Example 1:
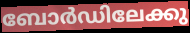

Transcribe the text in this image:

ബോർഡിലേക്കു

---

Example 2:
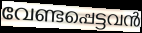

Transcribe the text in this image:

വേണ്ടപ്പെട്ടവൻ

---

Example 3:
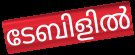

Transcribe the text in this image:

ടേബിളിൽ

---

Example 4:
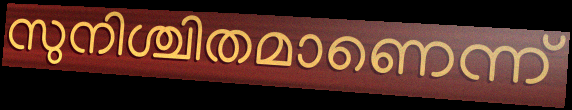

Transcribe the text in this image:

സുനിശ്ചിതമാണെന്ന്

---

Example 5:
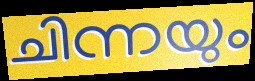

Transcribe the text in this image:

ചിന്നയും